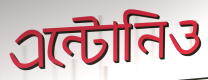
এন্টোনিও